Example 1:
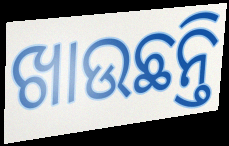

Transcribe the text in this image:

ଖାଉଛନ୍ତି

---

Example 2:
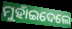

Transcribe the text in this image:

ମୁହାଁଇଦେଲେ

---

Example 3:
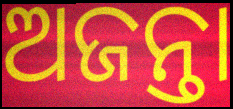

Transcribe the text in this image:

ଅଜନ୍ତା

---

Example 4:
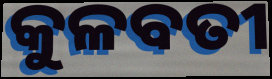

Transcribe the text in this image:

କୁଳବତୀ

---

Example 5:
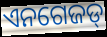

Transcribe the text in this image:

ଏନଗେଜଡ୍